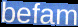
befam